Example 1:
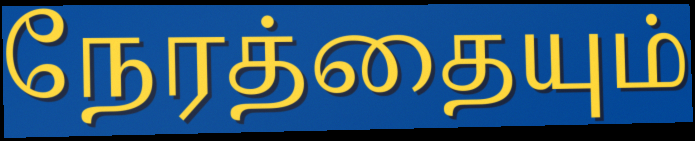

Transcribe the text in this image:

நேரத்தையும்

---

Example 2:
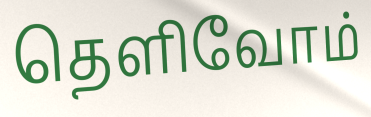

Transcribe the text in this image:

தெளிவோம்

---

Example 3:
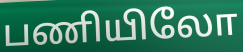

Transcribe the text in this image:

பணியிலோ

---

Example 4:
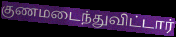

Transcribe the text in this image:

குணமடைந்துவிட்டார்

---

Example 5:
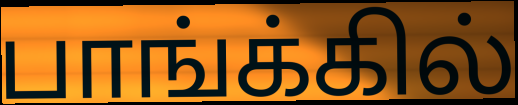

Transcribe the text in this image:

பாங்க்கில்